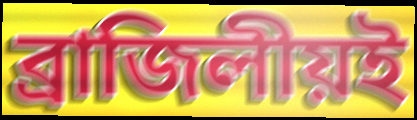
ব্রাজিলীয়ই